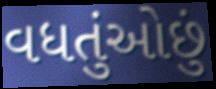
વધતુંઓછું